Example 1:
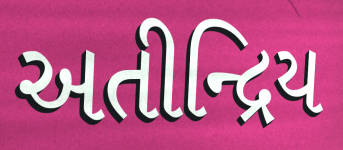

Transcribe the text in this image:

અતીન્દ્રિય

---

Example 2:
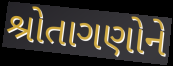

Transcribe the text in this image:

શ્રોતાગણોને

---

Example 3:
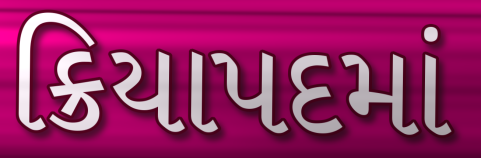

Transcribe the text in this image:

ક્રિયાપદમાં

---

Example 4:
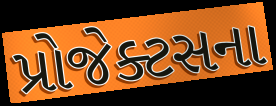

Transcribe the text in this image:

પ્રોજેક્ટસના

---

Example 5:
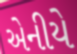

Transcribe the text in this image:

એનીયે